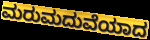
ಮರುಮದುವೆಯಾದ